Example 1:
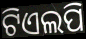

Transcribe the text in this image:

ଟିଏଲପି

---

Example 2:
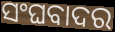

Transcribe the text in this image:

ସଂଘବାଦର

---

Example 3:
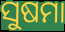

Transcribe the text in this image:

ସୁଷମା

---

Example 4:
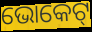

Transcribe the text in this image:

ଭୋକେଟ୍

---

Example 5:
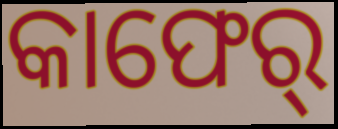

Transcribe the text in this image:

କାଫେର୍